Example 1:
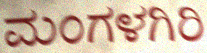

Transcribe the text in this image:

ಮಂಗಳಗಿರಿ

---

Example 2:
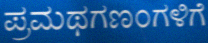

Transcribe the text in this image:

ಪ್ರಮಥಗಣಂಗಳಿಗೆ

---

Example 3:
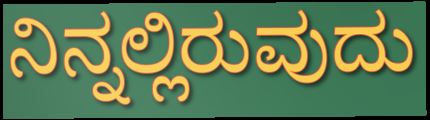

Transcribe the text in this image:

ನಿನ್ನಲ್ಲಿರುವುದು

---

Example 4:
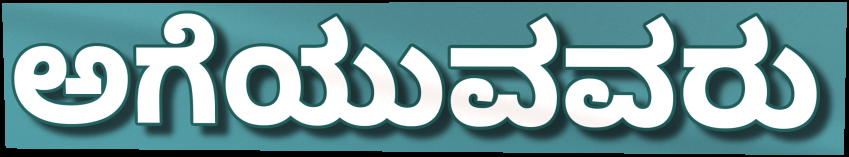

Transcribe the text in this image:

ಅಗೆಯುವವರು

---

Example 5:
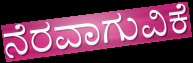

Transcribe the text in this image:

ನೆರವಾಗುವಿಕೆ